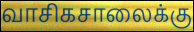
வாசிகசாலைக்கு